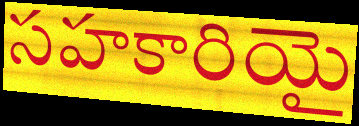
సహకారియై